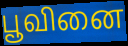
பூவினை